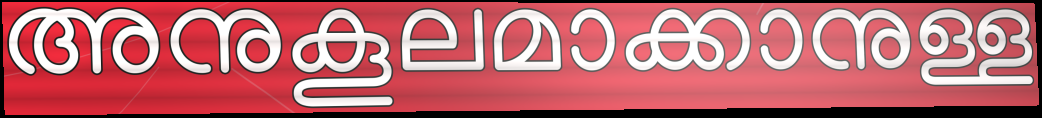
അനുകൂലമാക്കാനുള്ള